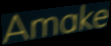
Amake